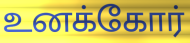
உனக்கோர்